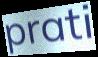
prati